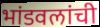
भांडवलांची